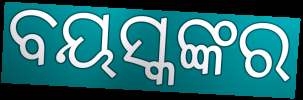
ବୟସ୍କଙ୍କର